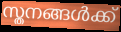
സ്തനങ്ങൾക്ക്